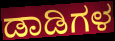
ಡಾಡಿಗಳ